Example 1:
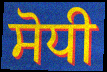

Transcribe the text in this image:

ਸੋਧੀ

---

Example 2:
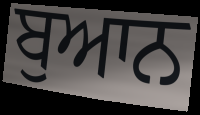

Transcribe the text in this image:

ਬੁਆਨ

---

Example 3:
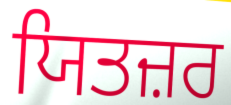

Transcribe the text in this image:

ਯਿਤਜ਼ਰ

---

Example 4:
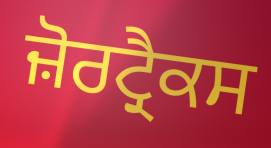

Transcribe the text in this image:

ਜ਼ੋਰਟ੍ਰੈਕਸ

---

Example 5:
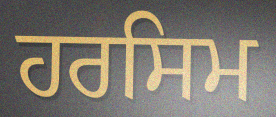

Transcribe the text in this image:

ਹਰਸਿਮ